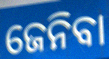
ଜେନିବା